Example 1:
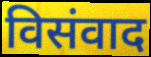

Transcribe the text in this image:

विसंवाद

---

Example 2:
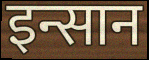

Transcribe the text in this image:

इन्सान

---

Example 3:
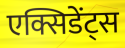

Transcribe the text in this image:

एक्सिडेंट्स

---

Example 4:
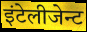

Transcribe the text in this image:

इंटेलीजेन्ट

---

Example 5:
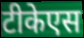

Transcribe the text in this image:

टीकेएस